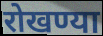
रोखण्या